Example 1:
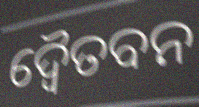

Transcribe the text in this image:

ଦ୍ବୈତବନ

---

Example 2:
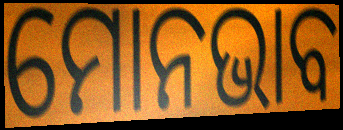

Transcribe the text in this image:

ମୋନଭାବ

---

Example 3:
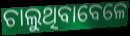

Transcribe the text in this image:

ଚାଲୁଥିବାବେଳେ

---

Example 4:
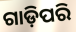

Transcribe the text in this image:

ଗାଡ଼ିପରି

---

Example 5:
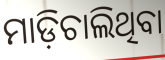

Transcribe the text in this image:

ମାଡ଼ିଚାଲିଥିବା